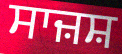
ਸਾਜ਼ਸ਼